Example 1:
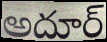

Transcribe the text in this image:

అదూర్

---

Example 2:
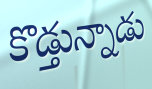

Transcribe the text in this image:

కొడ్తున్నాడు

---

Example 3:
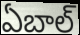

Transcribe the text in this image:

ఏబాల్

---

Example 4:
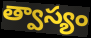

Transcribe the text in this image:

త్వాస్యం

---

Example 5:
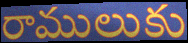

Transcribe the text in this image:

రాములుకు